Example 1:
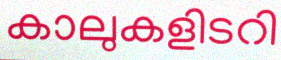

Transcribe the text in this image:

കാലുകളിടറി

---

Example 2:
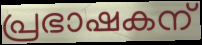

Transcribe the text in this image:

പ്രഭാഷകന്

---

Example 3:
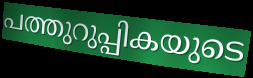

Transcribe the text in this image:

പത്തുറുപ്പികയുടെ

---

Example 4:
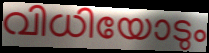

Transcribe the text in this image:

വിധിയോടും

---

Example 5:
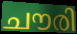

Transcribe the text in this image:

ചൗരി